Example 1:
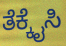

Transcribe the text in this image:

ತೆಕ್ಕೈಸಿ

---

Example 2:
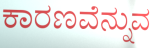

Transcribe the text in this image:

ಕಾರಣವೆನ್ನುವ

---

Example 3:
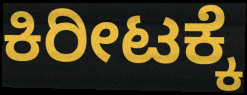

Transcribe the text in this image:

ಕಿರೀಟಕ್ಕೆ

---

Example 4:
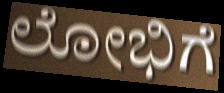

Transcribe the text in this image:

ಲೋಭಿಗೆ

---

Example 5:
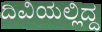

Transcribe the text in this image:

ದಿವಿಯಲ್ಲಿದ್ದ